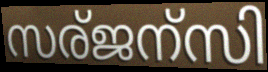
സര്ജന്സി